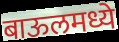
बाऊलमध्ये